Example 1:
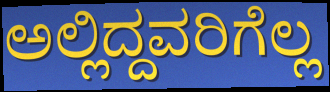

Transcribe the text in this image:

ಅಲ್ಲಿದ್ದವರಿಗೆಲ್ಲ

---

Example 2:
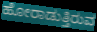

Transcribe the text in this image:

ಹೋರಾಡುತ್ತಿರುವ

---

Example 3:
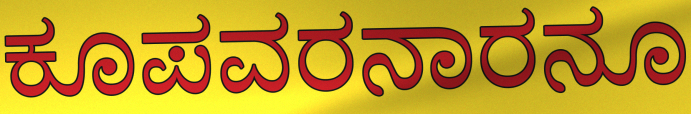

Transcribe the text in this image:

ಕೂಪವರನಾರನೂ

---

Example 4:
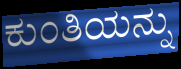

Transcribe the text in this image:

ಕುಂತಿಯನ್ನು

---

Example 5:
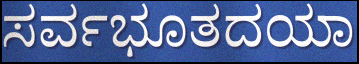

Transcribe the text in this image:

ಸರ್ವಭೂತದಯಾ